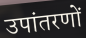
उपांतरणों